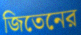
জিতেনের